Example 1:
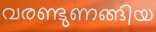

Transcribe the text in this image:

വരണ്ടുണങ്ങിയ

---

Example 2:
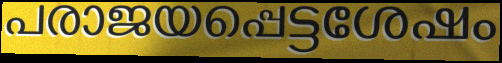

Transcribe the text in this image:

പരാജയപ്പെട്ടശേഷം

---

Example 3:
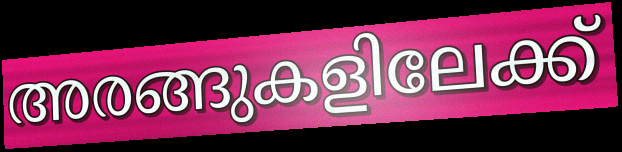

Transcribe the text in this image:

അരങ്ങുകളിലേക്ക്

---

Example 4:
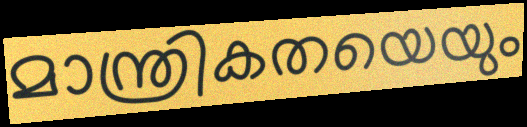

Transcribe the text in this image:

മാന്ത്രികതയെയും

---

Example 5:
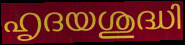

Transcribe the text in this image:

ഹൃദയശുദ്ധി